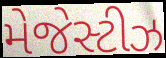
મેજેસ્ટીઝ